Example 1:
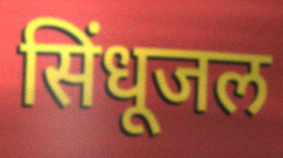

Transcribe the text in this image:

सिंधूजल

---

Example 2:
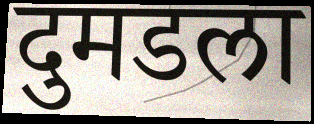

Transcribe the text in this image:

दुमडला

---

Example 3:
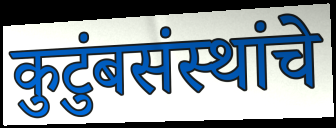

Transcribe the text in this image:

कुटुंबसंस्थांचे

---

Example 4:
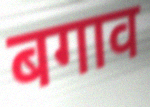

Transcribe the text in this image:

बगाव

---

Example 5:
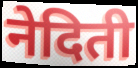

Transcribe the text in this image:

नेदिती